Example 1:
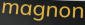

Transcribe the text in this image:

magnon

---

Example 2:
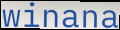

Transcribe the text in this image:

winana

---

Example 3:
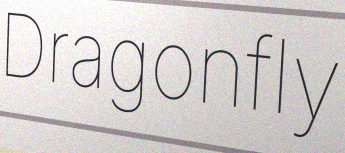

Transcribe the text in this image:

Dragonfly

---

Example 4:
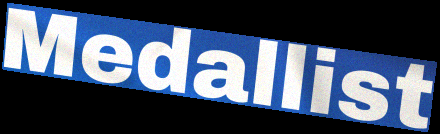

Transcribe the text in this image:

Medallist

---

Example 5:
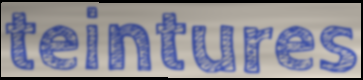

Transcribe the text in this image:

teintures